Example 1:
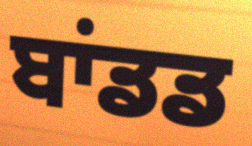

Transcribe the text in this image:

ਬਾਂਡਡ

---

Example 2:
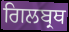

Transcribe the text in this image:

ਗਿਲਬ੍ਰਥ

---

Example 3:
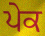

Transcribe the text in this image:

ਪੇਕ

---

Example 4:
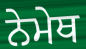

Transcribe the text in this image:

ਨੇਮੇਥ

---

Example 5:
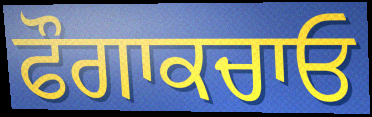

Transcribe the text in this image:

ਫੌਗਾਕਚਾਓ